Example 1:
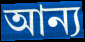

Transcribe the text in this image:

আন্য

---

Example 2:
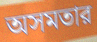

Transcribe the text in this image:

অসমতার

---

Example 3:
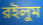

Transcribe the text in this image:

রইলুম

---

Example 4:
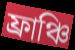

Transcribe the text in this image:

ফ্রাঞ্চি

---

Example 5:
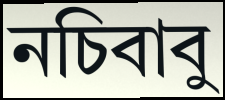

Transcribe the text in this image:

নচিবাবু